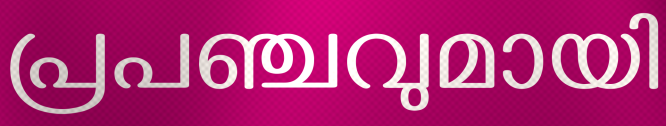
പ്രപഞ്ചവുമായി